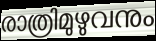
രാത്രിമുഴുവനും